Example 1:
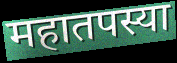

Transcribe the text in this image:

महातपस्या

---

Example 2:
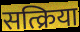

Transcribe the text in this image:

सत्क्रिया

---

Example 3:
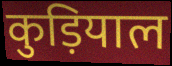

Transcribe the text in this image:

कुड़ियाल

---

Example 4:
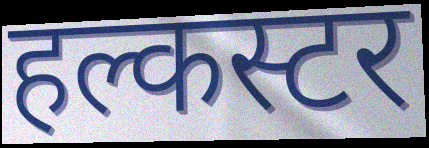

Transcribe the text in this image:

हल्कस्टर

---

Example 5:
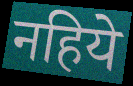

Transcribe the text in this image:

नहिये